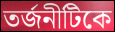
তর্জনীটিকে